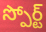
స్పోర్ట్